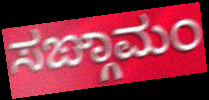
ಸಙ್ಗಾಮಂ